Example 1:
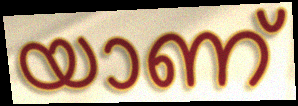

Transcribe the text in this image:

യാണ്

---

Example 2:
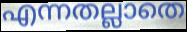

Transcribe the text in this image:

എന്നതല്ലാതെ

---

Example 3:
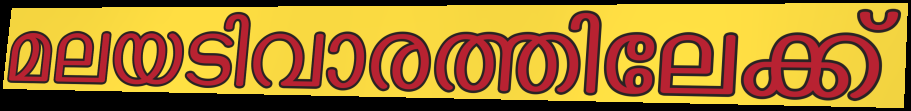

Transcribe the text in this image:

മലയടിവാരത്തിലേക്ക്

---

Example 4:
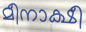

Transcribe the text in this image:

മീനാക്ഷീ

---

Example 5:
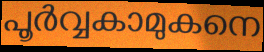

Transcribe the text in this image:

പൂർവ്വകാമുകനെ